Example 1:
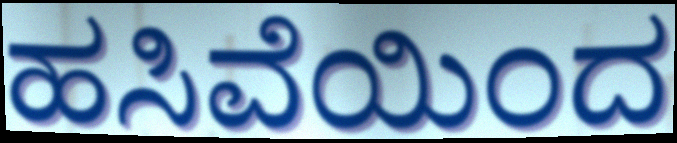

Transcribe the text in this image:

ಹಸಿವೆಯಿಂದ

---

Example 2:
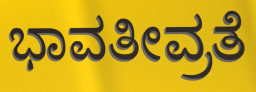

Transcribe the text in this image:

ಭಾವತೀವ್ರತೆ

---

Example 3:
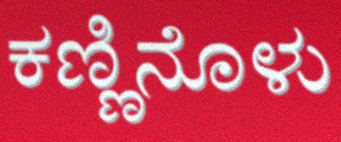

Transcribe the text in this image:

ಕಣ್ಣಿನೊಳು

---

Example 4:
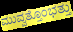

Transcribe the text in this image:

ಮುವ್ವತ್ತೊಂಭತ್ತು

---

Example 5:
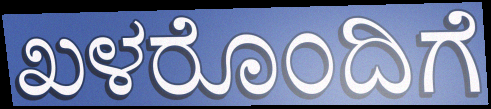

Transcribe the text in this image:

ಖಳರೊಂದಿಗೆ